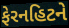
ફેરનહિટને